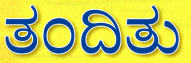
ತಂದಿತು